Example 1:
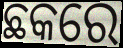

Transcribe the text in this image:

ଛକରେ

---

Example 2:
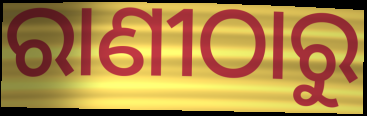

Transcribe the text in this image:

ରାଣୀଠାରୁ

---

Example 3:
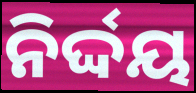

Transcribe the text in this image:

ନିର୍ଦ୍ଦୟ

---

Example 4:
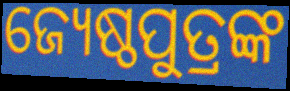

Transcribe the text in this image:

ଜ୍ୟେଷ୍ଠପୁତ୍ରଙ୍କ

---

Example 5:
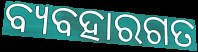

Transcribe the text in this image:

ବ୍ୟବହାରଗତ